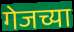
गेजच्या